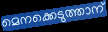
മെനക്കെടുത്താന്